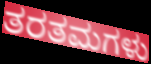
ತರತಮಗಳು